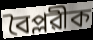
বৈপ্লৱীক